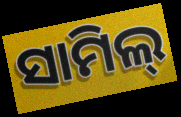
ସାମିଲ୍